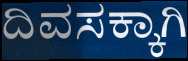
ದಿವಸಕ್ಕಾಗಿ